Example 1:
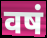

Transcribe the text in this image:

वषं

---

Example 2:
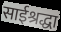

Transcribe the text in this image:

साईश्रद्धा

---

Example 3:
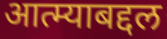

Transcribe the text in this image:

आत्म्याबद्दल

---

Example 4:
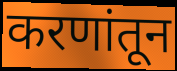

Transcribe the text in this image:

करणांतून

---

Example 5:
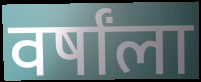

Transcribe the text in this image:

वर्षांला